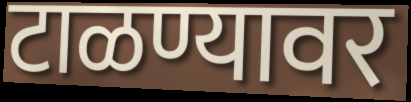
टाळण्यावर